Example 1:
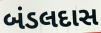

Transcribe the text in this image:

બંડલદાસ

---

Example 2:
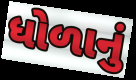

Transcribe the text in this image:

ધોળાનું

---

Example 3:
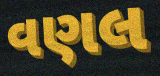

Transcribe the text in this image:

વણલ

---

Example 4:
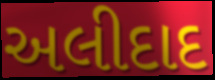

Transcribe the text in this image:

અલીદાદ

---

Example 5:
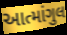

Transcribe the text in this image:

આત્માંગુલ